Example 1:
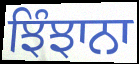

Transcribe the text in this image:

ਝਿੰਝਾਨਾ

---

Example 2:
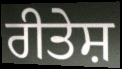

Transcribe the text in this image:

ਰੀਤੇਸ਼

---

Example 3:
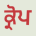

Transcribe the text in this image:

ਕ੍ਰੋਪ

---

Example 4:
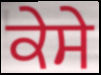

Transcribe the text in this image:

ਕੇਸੇ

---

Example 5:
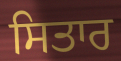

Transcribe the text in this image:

ਸਿਤਾਰ